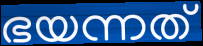
ഭയന്നത്